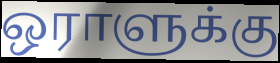
ஒராளுக்கு